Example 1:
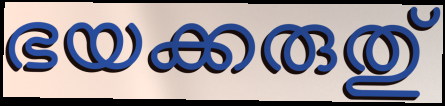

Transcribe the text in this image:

ഭയക്കരുതു്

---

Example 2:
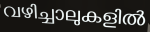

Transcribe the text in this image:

വഴിച്ചാലുകളിൽ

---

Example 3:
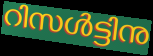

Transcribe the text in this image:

റിസൾട്ടിനു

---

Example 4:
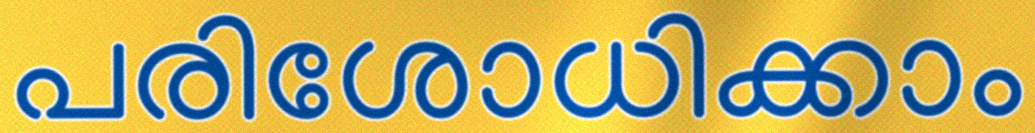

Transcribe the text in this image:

പരിശോധിക്കാം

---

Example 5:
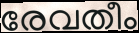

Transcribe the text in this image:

രേവതീം